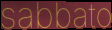
sabbato